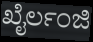
ಖೈರ್ಲಂಜಿ